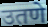
उतणे